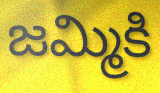
జమ్మికి